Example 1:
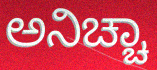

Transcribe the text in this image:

ಅನಿಚ್ಚಾ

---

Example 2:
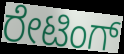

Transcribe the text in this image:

ರೇಟಿಂಗ್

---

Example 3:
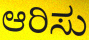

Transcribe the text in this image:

ಆರಿಸು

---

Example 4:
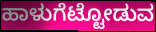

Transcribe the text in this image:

ಹಾಳುಗೆಟ್ಟೋಡುವ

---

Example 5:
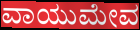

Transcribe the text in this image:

ವಾಯುಮೇವ